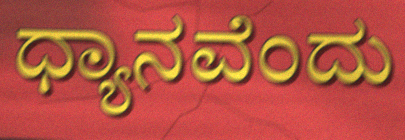
ಧ್ಯಾನವೆಂದು